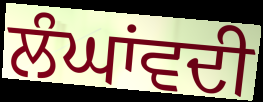
ਲੰਘਾਂਵਦੀ